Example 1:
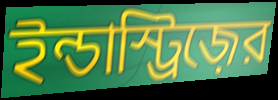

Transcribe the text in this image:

ইন্ডাস্ট্রিজ়ের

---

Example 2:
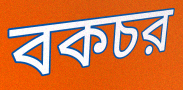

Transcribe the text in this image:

বকচর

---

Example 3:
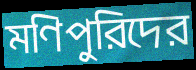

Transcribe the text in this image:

মণিপুরিদের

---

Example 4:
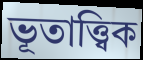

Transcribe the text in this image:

ভূতাত্ত্বিক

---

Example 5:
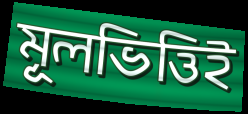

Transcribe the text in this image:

মূলভিত্তিই